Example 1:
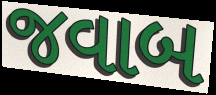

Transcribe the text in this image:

જવાબ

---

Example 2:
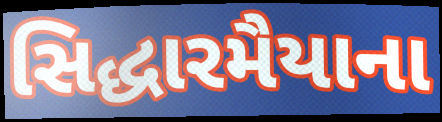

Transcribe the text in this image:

સિદ્ધારમૈયાના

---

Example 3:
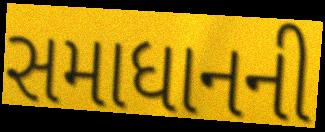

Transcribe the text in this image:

સમાધાનની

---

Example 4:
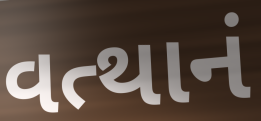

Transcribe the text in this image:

વત્થાનં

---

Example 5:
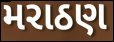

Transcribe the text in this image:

મરાઠણ